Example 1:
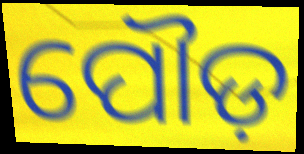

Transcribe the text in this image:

ପୌଡ଼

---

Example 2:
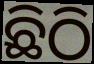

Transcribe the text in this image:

ଛିଠି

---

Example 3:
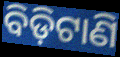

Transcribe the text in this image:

ବିଡ଼ିଟାଣି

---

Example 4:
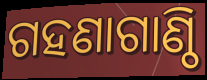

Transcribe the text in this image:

ଗହଣାଗାଣ୍ଠି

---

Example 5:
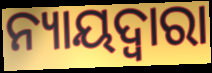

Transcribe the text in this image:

ନ୍ୟାୟଦ୍ୱାରା